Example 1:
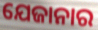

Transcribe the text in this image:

ଯେଜାନାର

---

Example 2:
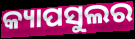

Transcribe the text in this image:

କ୍ୟାପସୁଲର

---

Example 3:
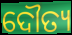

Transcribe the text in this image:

ଦୌତ୍ୟ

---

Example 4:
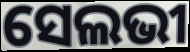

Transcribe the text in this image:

ସେଲଭୀ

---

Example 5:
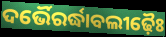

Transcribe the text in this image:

ଦର୍ଭୈରର୍ଦ୍ଧାବଲୀଢ଼ୈଃ